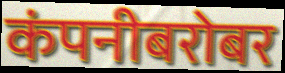
कंपनीबरोबर